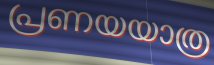
പ്രണയയാത്ര